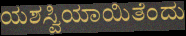
ಯಶಸ್ವಿಯಾಯಿತೆಂದು